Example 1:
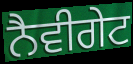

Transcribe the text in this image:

ਨੈਵੀਗੇਟ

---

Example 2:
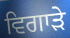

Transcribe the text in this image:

ਵਿਗਾੜੇ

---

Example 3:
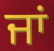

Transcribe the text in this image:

ਜਾਂ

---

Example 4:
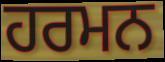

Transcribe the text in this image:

ਹਰਮਨ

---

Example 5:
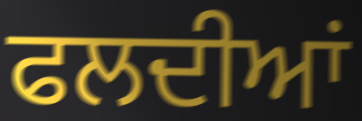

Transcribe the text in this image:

ਫਲਦੀਆਂ